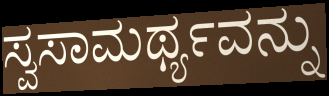
ಸ್ವಸಾಮರ್ಥ್ಯವನ್ನು